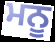
ਮਨੂ